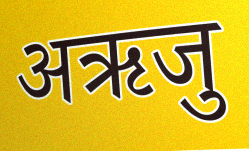
अऋजु